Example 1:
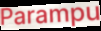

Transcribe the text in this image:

Parampu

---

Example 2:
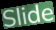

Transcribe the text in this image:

Slide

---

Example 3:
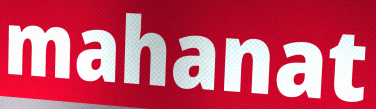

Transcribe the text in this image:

mahanat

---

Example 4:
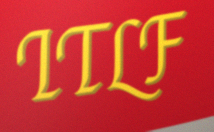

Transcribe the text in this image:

ITLF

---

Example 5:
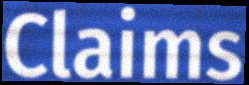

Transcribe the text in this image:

Claims